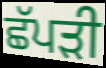
ਛੱਪੜੀ